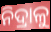
ନିଦ୍ରାଳୁ